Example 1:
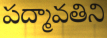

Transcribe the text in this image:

పద్మావతిని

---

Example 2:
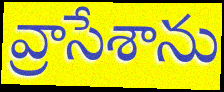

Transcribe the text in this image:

వ్రాసేశాను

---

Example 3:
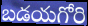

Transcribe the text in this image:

బడయగోరి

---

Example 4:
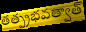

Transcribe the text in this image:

తత్ప్రభవత్వాత్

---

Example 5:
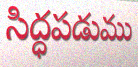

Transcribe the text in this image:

సిద్ధపడుము